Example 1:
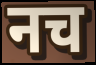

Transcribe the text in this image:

नच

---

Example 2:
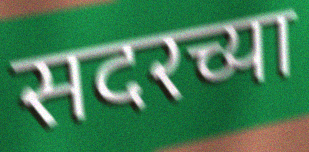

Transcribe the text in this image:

सदरच्या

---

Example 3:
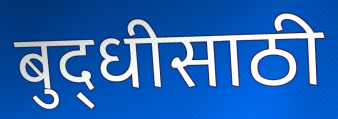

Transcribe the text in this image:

बुद्धीसाठी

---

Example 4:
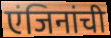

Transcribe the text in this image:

एंजिनांची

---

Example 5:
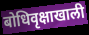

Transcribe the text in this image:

बोधिवृक्षाखाली